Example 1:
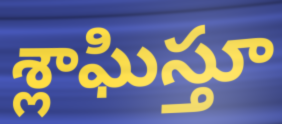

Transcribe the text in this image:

శ్లాఘిస్తూ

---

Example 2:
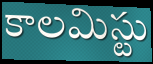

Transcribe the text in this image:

కాలమిస్టు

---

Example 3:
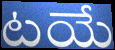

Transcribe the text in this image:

టయే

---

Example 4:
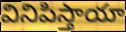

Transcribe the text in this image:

వినిపిస్తాయా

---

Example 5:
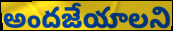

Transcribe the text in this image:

అందజేయాలని